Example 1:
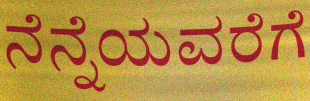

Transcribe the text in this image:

ನೆನ್ನೆಯವರೆಗೆ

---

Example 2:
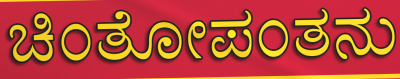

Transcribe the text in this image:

ಚಿಂತೋಪಂತನು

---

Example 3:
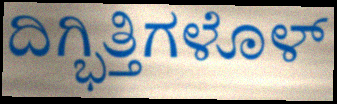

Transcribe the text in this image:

ದಿಗ್ಭಿತ್ತಿಗಳೊಳ್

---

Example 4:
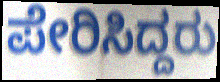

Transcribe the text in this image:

ಪೇರಿಸಿದ್ದರು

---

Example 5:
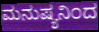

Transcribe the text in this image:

ಮನುಷ್ಯನಿಂದ